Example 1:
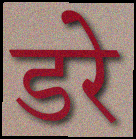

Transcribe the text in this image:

डरे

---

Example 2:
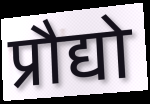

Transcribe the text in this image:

प्रौद्यो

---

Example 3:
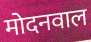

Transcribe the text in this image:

मोदनवाल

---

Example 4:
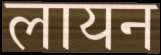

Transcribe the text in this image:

लायन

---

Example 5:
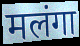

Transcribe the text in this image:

मलंगा